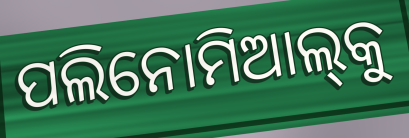
ପଲିନୋମିଆଲ୍‌କୁ